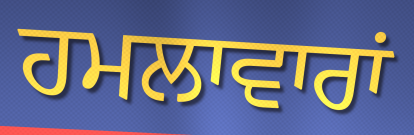
ਹਮਲਾਵਾਰਾਂ